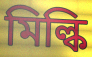
মিল্কি